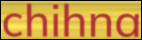
chihna